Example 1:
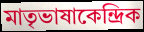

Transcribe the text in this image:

মাতৃভাষাকেন্দ্রিক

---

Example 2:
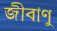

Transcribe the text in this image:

জীবাণু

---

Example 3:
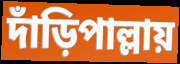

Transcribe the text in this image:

দাঁড়িপাল্লায়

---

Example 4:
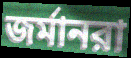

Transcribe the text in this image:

জর্মানরা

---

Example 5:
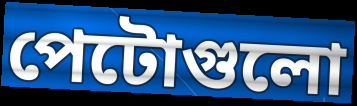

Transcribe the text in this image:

পেটোগুলো